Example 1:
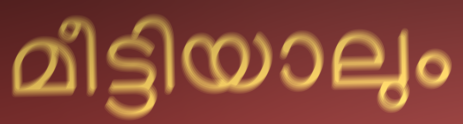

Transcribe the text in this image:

മീട്ടിയാലും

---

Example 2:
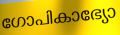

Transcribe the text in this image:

ഗോപികാഭ്യോ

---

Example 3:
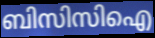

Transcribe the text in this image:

ബിസിസിഐ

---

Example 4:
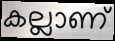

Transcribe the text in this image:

കല്ലാണ്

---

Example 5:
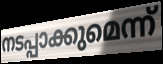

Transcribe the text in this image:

നടപ്പാക്കുമെന്ന്